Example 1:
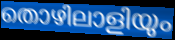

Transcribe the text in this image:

തൊഴിലാളിയും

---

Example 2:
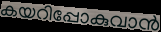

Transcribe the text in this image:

കയറിപ്പോകുവാൻ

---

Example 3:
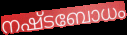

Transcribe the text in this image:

നഷ്ടബോധം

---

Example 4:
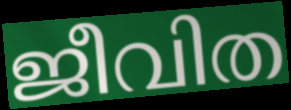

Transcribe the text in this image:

ജീവിത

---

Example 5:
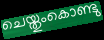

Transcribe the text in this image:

ചെയ്തുംകൊണ്ടു